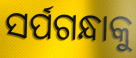
ସର୍ପଗନ୍ଧାକୁ